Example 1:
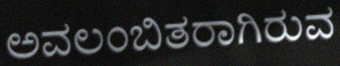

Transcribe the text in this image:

ಅವಲಂಬಿತರಾಗಿರುವ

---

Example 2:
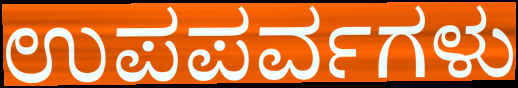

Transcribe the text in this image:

ಉಪಪರ್ವಗಳು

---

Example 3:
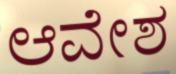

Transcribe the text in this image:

ಆವೇಶ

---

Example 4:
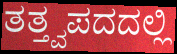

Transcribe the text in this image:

ತತ್ತ್ವಪದದಲ್ಲಿ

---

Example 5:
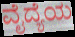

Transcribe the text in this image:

ವೈದ್ಯೆಯ